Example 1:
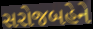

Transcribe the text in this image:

સરોજબહેને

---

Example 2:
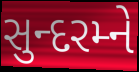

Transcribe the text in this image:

સુન્દરમ્ને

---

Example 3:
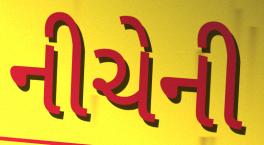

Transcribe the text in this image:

નીચેની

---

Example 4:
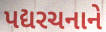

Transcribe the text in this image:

પદ્યરચનાને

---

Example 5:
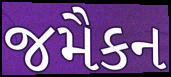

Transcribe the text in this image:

જમૈકન